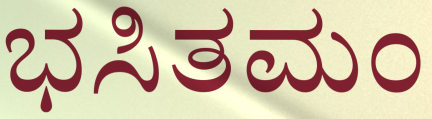
ಭಸಿತಮಂ